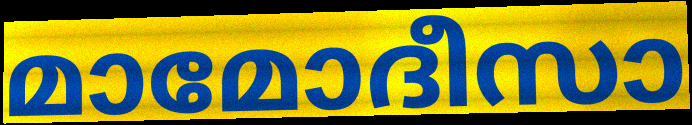
മാമോദീസാ